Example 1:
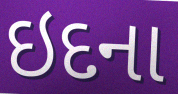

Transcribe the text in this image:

ઇદના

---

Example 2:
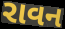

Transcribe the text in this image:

રાવન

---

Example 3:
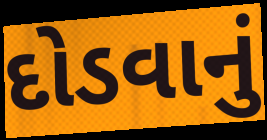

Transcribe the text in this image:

દોડવાનું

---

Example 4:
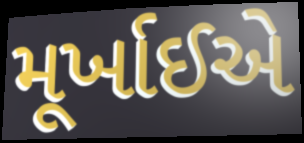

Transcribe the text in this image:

મૂર્ખાઈએ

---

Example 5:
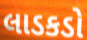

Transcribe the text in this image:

લાડકડો